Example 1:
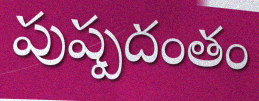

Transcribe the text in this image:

పుష్పదంతం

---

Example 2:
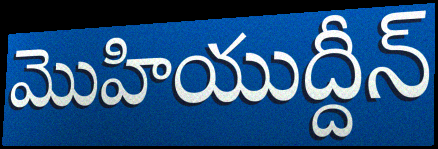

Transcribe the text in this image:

మొహియుద్దీన్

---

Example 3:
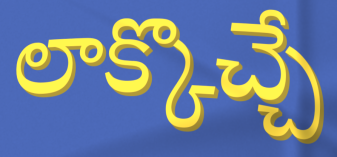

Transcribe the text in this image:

లాక్కొచ్చే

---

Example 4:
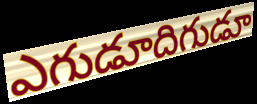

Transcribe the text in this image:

ఎగుడూదిగుడూ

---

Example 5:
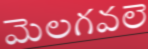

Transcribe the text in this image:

మెలగవలె